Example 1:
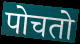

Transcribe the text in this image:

पोचतो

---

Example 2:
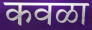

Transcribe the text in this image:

कवळा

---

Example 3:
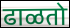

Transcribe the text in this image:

ढाळतो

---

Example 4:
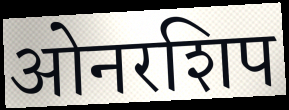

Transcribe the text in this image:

ओनरशिप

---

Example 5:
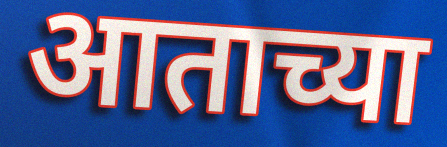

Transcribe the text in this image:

आताच्या